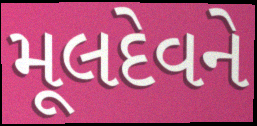
મૂલદેવને